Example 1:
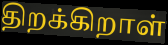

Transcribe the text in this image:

திறக்கிறாள்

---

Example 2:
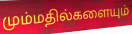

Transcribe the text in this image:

மும்மதில்களையும்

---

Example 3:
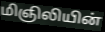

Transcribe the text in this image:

மிஞிலியின்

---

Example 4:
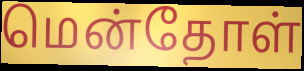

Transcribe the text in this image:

மென்தோள்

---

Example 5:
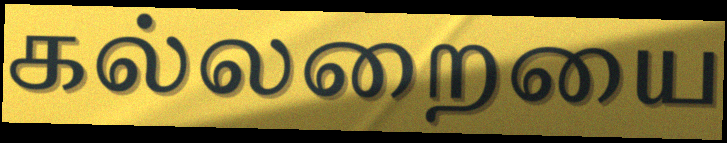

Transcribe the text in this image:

கல்லறையை